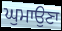
ਘੁਮਾਉਣਾ